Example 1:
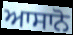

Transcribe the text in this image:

ਆਸਾਨੋ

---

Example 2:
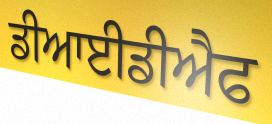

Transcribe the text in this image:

ਡੀਆਈਡੀਐਫ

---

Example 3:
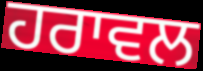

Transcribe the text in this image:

ਹਰਾਵਲ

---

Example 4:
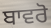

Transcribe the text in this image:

ਬਾਵਰੋ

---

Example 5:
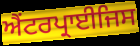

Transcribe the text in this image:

ਐਂਟਰਪ੍ਰਾਈਜਿਸ